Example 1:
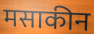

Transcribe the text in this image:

मसाकीन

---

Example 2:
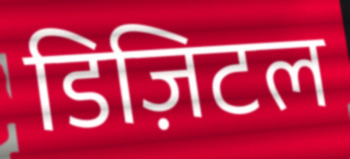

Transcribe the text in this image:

डिज़िटल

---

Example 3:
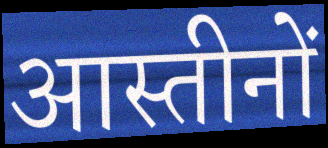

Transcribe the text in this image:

आस्तीनों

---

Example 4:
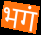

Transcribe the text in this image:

भगं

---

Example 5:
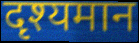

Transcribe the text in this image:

दृश्यमान